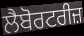
ਲੈਬੋਰਟਰੀਜ਼